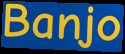
Banjo